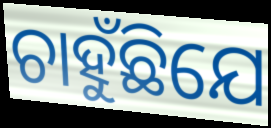
ଚାହୁଁଛିଯେ